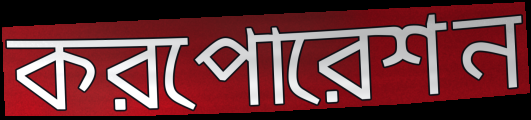
করপোরেশন